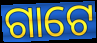
ଗାଟେ